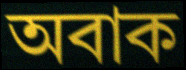
অবাক